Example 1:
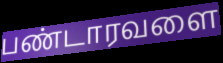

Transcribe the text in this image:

பண்டாரவளை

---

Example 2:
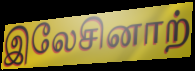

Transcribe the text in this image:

இலேசினாற்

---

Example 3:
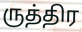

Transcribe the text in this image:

ருத்திர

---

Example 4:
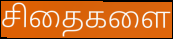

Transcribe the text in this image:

சிதைகளை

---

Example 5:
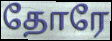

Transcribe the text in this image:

தோரே